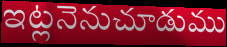
ఇట్లనెనుచూడుము